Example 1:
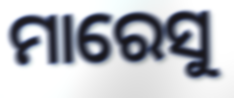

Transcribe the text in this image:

ମାରେସୁ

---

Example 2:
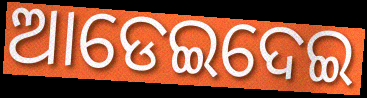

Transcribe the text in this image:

ଆଡେଇଦେଇ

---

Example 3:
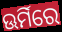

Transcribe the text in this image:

ଊର୍ମିରେ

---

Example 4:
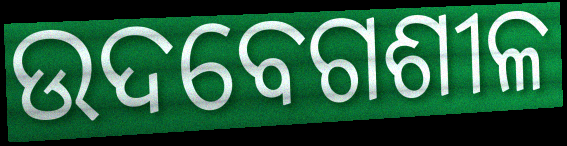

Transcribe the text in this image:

ଉଦବେଗଶୀଳ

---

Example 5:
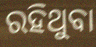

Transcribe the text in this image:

ରହିଥୁବା